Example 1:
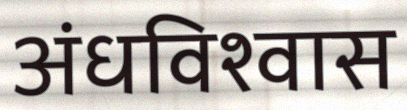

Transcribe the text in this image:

अंधविश्वास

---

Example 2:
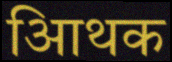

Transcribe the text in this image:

आिथक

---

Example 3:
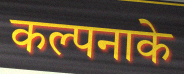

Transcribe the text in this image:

कल्पनाके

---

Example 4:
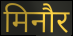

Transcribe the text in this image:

मिनौर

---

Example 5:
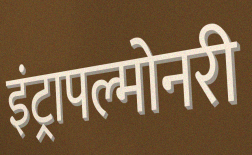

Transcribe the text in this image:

इंट्रापल्मोनरी